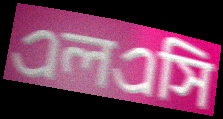
এলএসি